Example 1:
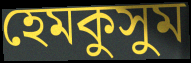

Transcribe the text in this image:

হেমকুসুম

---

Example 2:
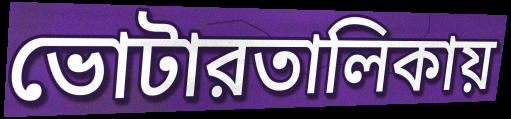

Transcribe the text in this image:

ভোটারতালিকায়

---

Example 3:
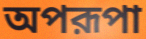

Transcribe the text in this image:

অপরূপা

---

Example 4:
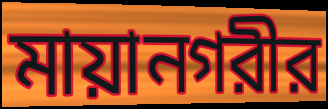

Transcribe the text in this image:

মায়ানগরীর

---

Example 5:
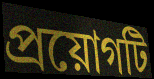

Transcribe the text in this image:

প্রয়োগটি